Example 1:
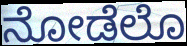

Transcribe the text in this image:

ನೋಡೆಲೊ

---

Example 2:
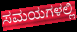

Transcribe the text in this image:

ಸಮಯಗಳಲ್ಲಿ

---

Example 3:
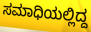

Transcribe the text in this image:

ಸಮಾಧಿಯಲ್ಲಿದ್ದ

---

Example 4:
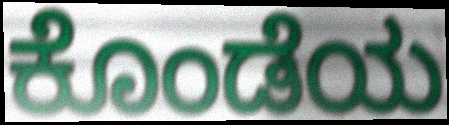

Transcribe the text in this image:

ಕೊಂಡೆಯ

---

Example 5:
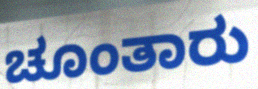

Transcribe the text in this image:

ಚೂಂತಾರು